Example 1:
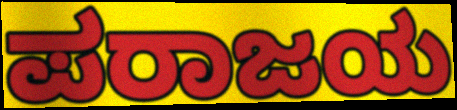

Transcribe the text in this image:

ಪರಾಜಯ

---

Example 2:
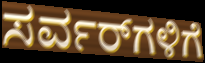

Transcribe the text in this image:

ಸರ್ವರ್‌ಗಳಿಗೆ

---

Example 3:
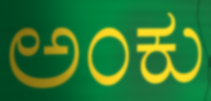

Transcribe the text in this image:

ಅಂಕು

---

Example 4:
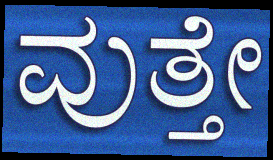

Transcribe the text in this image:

ವುತ್ತೇ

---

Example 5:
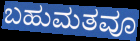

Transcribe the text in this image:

ಬಹುಮತವೂ